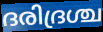
ദരിദ്രശ്ച